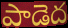
పాడెద